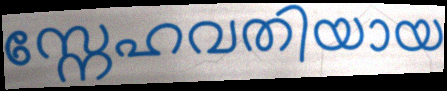
സ്നേഹവതിയായ